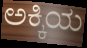
ಅಕ್ಕಿಯ